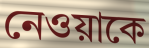
নেওয়াকে